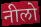
नीलो